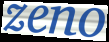
zeno